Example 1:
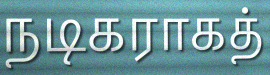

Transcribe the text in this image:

நடிகராகத்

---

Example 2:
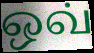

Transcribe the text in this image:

ஒவ்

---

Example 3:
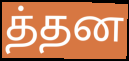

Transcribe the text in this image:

த்தன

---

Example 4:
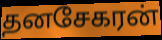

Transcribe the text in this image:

தனசேகரன்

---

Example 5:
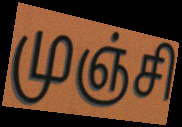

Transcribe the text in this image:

முஞ்சி